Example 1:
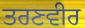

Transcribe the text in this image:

ਤਰਣਵੀਰ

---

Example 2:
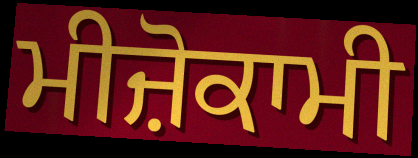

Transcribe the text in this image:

ਮੀਜ਼ੋਕਾਮੀ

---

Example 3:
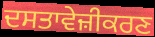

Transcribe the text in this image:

ਦਸਤਾਵੇਜ਼ੀਕਰਣ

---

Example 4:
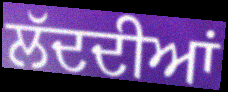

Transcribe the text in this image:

ਲੱਦਦੀਆਂ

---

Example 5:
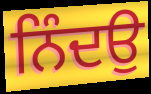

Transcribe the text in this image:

ਨਿੰਦਉ